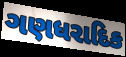
ગણધરાદિક